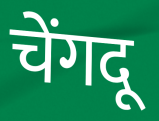
चेंगदू